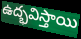
ఉద్భవిస్తాయి